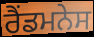
ਰੈਂਡਮਨੇਸ